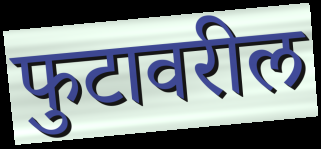
फुटावरील